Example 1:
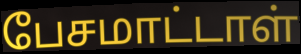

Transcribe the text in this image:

பேசமாட்டாள்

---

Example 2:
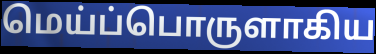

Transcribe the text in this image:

மெய்ப்பொருளாகிய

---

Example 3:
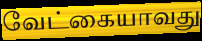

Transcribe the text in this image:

வேட்கையாவது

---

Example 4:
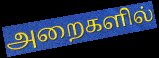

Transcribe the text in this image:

அறைகளில்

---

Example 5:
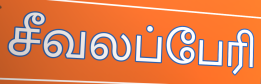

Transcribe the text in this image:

சீவலப்பேரி